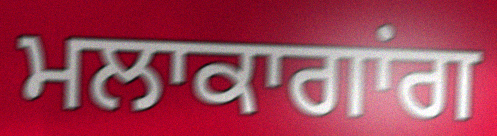
ਮਲਾਕਾਗਾਂਗ